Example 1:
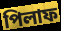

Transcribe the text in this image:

পিলাফ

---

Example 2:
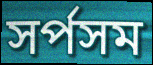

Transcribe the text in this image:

সর্পসম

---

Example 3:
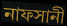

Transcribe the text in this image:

নাফসানী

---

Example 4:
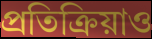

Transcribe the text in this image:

প্রতিক্রিয়াও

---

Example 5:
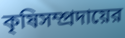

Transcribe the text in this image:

কৃষিসম্প্রদায়ের